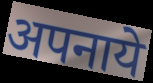
अपनाये